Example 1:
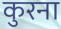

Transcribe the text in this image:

कुरना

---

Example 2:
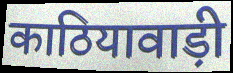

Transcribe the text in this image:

काठियावाड़ी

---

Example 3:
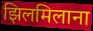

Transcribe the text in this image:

झिलमिलाना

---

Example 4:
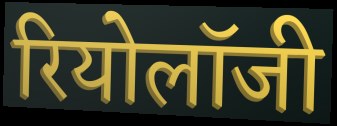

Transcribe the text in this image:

रियोलॉजी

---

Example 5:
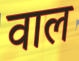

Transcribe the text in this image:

वाल